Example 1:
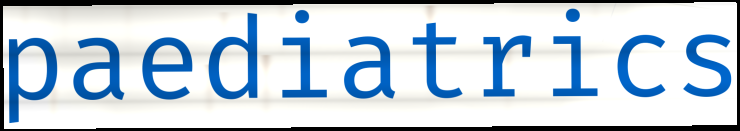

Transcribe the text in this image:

paediatrics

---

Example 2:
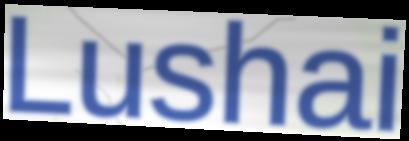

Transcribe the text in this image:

Lushai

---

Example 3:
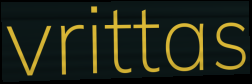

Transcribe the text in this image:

vrittas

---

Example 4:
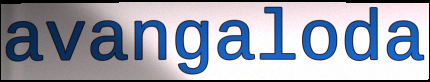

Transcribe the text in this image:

avangaloda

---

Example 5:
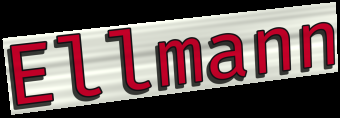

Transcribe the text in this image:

Ellmann